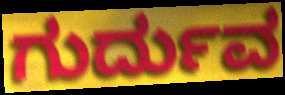
ಗುರ್ದುವ